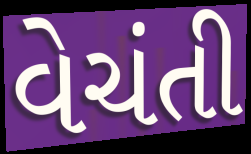
વેચંતી